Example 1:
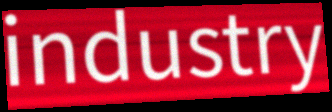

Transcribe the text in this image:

industry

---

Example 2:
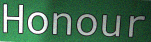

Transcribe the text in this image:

Honour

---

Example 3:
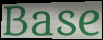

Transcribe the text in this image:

Base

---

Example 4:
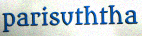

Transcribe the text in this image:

parisuththa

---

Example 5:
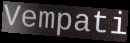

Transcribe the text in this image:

Vempati